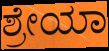
ಶ್ರೇಯಾ